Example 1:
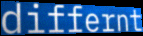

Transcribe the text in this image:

differnt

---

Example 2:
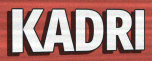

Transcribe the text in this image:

KADRI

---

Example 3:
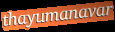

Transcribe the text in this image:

thayumanavar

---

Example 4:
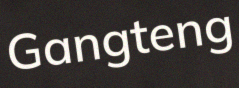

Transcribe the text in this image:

Gangteng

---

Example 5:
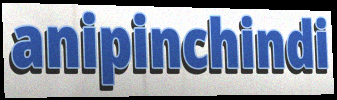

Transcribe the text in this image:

anipinchindi